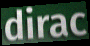
dirac